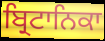
ਬ੍ਰਿਟਾਨਿਕਾ